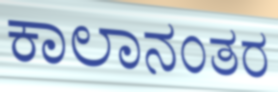
ಕಾಲಾನಂತರ